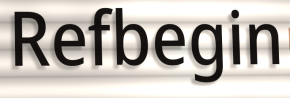
Refbegin